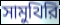
সামুথিরি